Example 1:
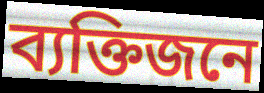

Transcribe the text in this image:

ব্যক্তিজনে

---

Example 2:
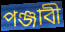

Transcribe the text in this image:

পঞ্জাবী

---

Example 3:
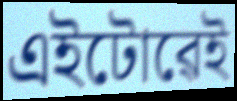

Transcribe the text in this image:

এইটোৱেই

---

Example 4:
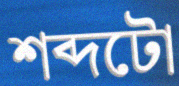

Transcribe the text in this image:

শব্দটো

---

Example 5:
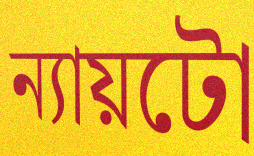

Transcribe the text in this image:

ন্যায়টো